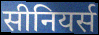
सीनियर्स